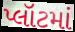
પ્લૉટમાં